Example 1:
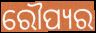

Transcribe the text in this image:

ରୌପ୍ୟର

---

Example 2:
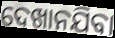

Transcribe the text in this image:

ଦେଖାନଯିବା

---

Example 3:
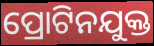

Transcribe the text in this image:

ପ୍ରୋଟିନଯୁକ୍ତ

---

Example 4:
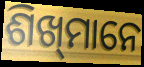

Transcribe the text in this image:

ଶିଖ୍‌ମାନେ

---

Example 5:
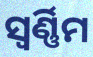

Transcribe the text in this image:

ସ୍ୱର୍ଣ୍ଣିମ